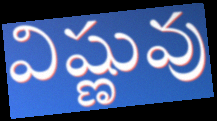
విష్ణువు